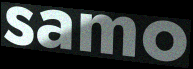
samo